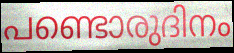
പണ്ടൊരുദിനം